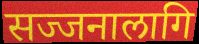
सज्जनालागि